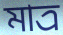
মাত্র